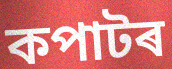
কপাটৰ